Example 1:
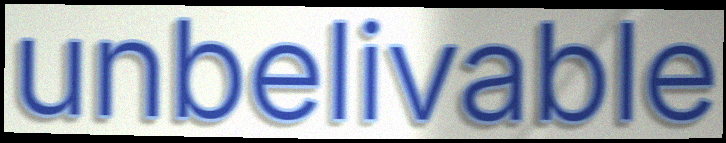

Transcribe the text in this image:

unbelivable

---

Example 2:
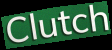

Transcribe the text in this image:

Clutch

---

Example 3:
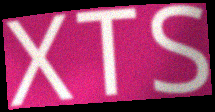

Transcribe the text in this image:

XTS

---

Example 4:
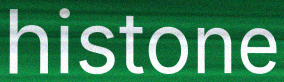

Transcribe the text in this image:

histone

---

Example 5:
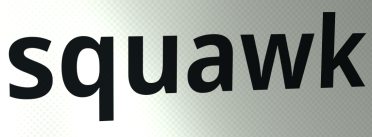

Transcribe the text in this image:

squawk